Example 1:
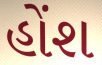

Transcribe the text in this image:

હોંશ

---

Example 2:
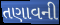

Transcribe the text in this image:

તણાવની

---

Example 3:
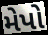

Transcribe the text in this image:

મેપો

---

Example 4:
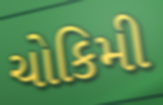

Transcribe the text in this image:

ચોકિમી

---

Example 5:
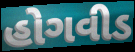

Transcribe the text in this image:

હોગવીડ